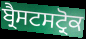
ਬ੍ਰੈਸਟਸਟ੍ਰੋਕ